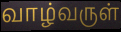
வாழ்வருள்